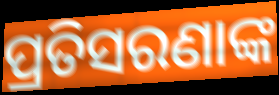
ପ୍ରତିସରଣାଙ୍କ